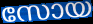
സോയ